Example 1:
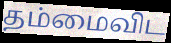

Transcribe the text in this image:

தம்மைவிட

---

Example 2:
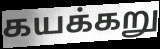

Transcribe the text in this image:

கயக்கறு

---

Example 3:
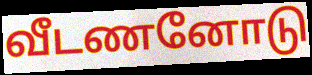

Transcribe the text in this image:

வீடணனோடு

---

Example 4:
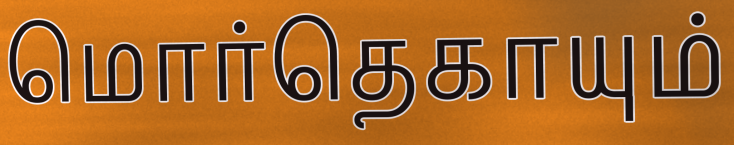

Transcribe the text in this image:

மொர்தெகாயும்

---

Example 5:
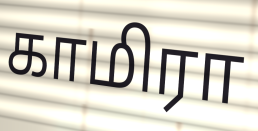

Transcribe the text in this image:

காமிரா